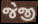
જેજી